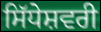
ਸਿੱਧੇਸ਼ਵਰੀ